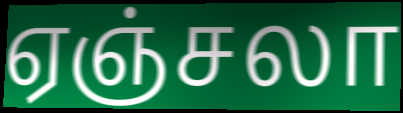
ஏஞ்சலா